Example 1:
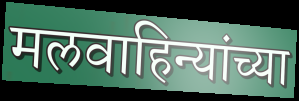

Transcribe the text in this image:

मलवाहिन्यांच्या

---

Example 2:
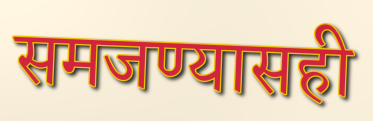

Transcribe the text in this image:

समजण्यासही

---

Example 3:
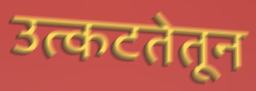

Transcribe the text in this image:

उत्कटतेतून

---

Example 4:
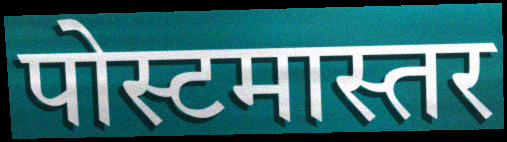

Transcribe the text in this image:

पोस्टमास्तर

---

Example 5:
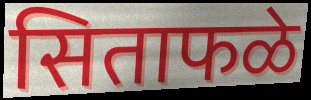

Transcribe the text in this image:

सिताफळे